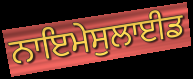
ਨਾਇਮੇਸੁਲਾਈਡ